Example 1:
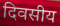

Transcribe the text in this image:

दिवसीय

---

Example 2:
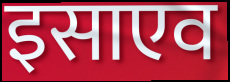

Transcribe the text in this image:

इसाएव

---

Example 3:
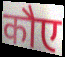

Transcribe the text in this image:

कौए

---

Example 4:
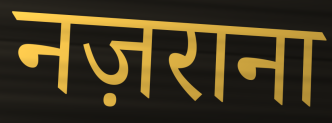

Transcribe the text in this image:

नज़राना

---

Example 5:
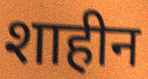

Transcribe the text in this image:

शाहीन